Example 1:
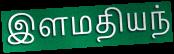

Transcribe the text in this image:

இளமதியந்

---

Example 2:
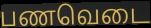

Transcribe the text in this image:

பணவெடை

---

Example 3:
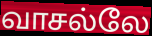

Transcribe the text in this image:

வாசல்லே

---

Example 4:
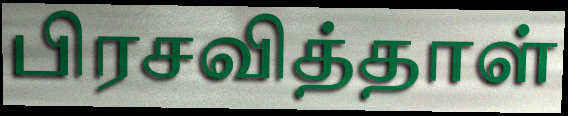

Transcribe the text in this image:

பிரசவித்தாள்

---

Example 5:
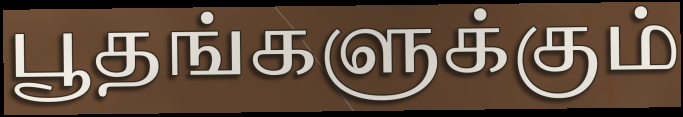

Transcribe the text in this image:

பூதங்களுக்கும்